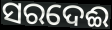
ସରଦେଈ